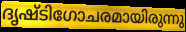
ദൃഷ്ടിഗോചരമായിരുന്നു